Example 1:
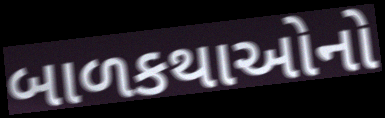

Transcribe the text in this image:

બાળકથાઓનો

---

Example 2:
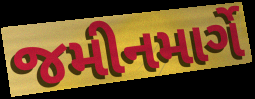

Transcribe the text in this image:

જમીનમાર્ગે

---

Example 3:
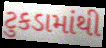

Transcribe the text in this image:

ટુકડામાંથી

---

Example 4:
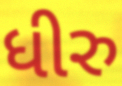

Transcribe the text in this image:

ધીરુ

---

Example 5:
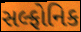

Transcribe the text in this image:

સલ્ફોનિક